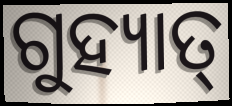
ଗୁହ୍ୟାତ୍